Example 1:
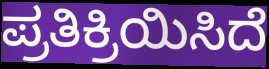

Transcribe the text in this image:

ಪ್ರತಿಕ್ರಿಯಿಸಿದೆ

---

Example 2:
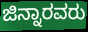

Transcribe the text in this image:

ಜಿನ್ನಾರವರು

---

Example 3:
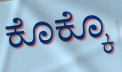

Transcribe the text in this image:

ಕೊಕ್ಕೊ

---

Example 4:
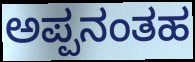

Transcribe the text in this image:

ಅಪ್ಪನಂತಹ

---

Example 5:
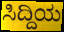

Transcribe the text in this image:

ಸಿದ್ದಿಯ